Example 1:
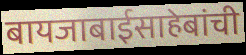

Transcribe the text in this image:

बायजाबाईसाहेबांची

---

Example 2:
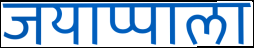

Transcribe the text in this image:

जयाप्पाला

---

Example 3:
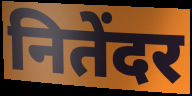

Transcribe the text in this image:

नितेंदर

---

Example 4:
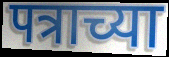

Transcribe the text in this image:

पत्राच्या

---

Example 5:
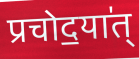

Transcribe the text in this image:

प्रचो॒दया॑त्